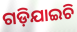
ଗଡ଼ିଯାଇଚି